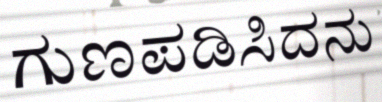
ಗುಣಪಡಿಸಿದನು